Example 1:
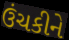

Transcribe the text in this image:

ઉંચકીને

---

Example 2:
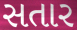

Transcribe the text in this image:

સતાર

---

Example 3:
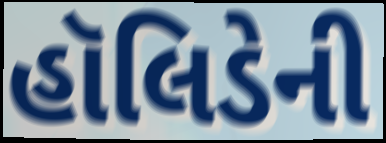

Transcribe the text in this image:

હૉલિડેની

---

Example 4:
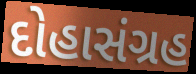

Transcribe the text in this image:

દોહાસંગ્રહ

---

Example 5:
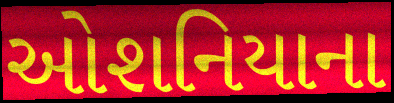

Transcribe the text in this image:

ઓશનિયાના